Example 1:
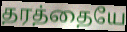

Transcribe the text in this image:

தரத்தையே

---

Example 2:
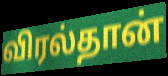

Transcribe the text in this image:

விரல்தான்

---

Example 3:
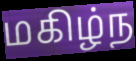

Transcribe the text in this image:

மகிழ்ந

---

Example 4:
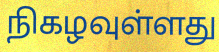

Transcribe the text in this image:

நிகழவுள்ளது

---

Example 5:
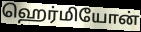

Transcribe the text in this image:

ஹெர்மியோன்